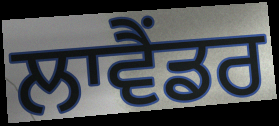
ਲਾਵੈਂਡਰ